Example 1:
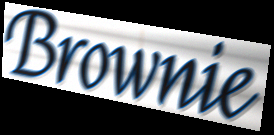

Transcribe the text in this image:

Brownie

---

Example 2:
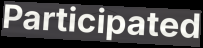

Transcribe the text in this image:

Participated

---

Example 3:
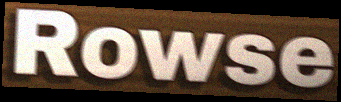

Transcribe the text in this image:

Rowse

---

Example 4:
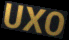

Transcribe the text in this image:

UXO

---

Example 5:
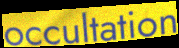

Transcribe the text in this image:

occultation